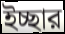
ইচ্ছার